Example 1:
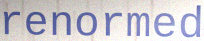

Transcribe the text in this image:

renormed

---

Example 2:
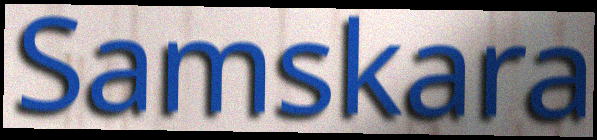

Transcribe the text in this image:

Samskara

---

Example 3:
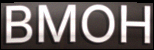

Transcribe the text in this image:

BMOH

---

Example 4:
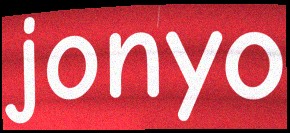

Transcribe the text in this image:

jonyo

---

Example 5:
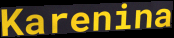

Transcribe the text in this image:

Karenina